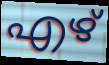
എഴ്